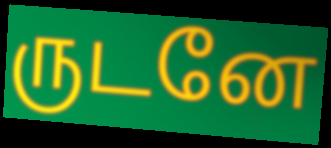
ருடனே